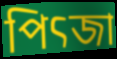
পিৎজা